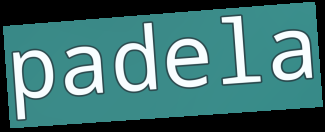
padela